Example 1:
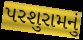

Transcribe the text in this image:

પરશુરામનું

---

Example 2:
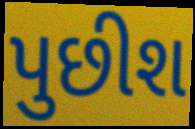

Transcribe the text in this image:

પુછીશ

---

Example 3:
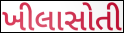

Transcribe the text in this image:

ખીલાસોતી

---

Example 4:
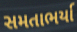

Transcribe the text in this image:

સમતાભર્યા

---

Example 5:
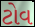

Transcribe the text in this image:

ટોવ